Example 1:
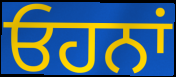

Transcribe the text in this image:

ਓਹਨਾਂ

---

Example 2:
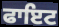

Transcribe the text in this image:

ਫਾਇਟ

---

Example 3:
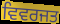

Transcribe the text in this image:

ਵਿਵਰਜਤ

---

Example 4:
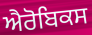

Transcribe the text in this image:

ਐਰੋਬਿਕਸ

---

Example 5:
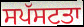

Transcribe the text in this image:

ਸਪੱਸਟਤਾ